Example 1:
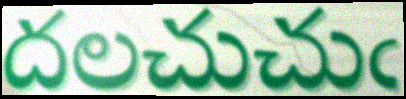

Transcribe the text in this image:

దలచుచుఁ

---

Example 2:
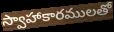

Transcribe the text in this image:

స్వాహాకారములతో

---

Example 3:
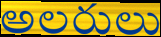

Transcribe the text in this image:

అలరులు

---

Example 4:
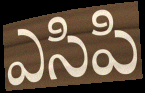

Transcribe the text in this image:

ఎసిపి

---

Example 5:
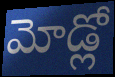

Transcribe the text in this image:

మోడ్లో